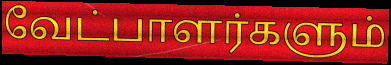
வேட்பாளர்களும்